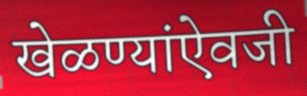
खेळण्यांऐवजी